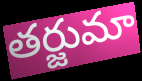
తర్జుమా